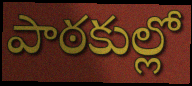
పాఠకుల్లో